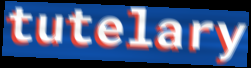
tutelary